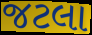
જટલા